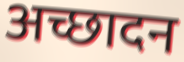
अच्छादन